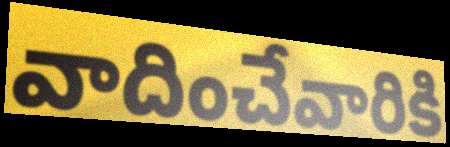
వాదించేవారికి